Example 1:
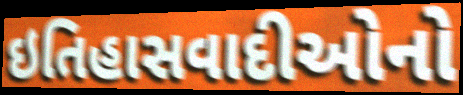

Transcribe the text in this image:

ઇતિહાસવાદીઓનો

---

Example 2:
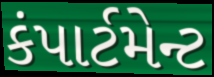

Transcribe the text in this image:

કંપાર્ટમેન્ટ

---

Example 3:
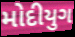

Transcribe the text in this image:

મોદીયુગ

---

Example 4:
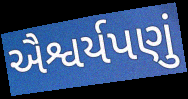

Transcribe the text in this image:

ઐશ્વર્યપણું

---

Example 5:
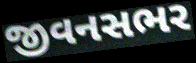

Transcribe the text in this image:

જીવનસભર